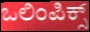
ಒಲಿಂಪಿಕ್ಸ್